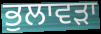
ਭੁਲਾਵੜਾ